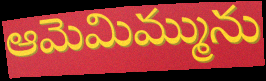
ఆమెమిమ్మును